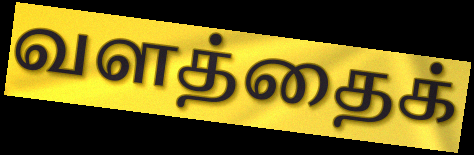
வளத்தைக்